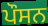
ਪੌਸਨ